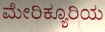
ಮೇರಿಕ್ಯೂರಿಯ